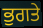
ਭੁਗਤੇ